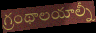
గ్రంథాలయాల్నీ